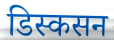
डिस्कसन